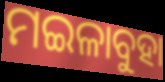
ମଇଳାବୁହା